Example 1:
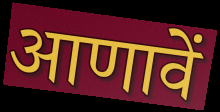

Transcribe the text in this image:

आणावें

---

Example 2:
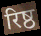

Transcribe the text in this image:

रिष्ठ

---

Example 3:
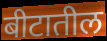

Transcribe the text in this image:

बीटातील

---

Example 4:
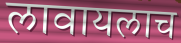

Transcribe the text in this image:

लावायलाच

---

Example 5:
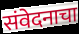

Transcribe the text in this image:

संवेदनाचा